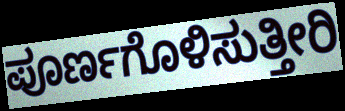
ಪೂರ್ಣಗೊಳಿಸುತ್ತೀರಿ